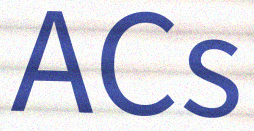
ACs